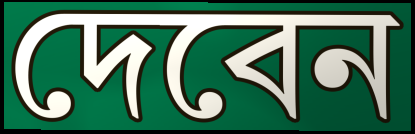
দেবেন